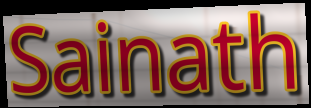
Sainath